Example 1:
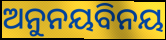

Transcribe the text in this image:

ଅନୁନୟବିନୟ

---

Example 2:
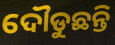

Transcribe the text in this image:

ଦୌଡୁଛନ୍ତି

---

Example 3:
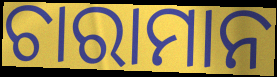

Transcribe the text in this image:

ଚାରାମାନ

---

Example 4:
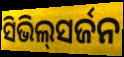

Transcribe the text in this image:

ସିଭିଲ୍‌ସର୍ଜନ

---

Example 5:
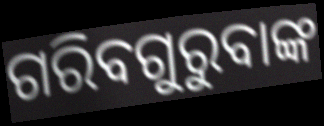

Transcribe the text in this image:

ଗରିବଗୁରୁବାଙ୍କ